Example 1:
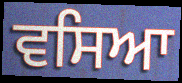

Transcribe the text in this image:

ਵਸਿਆ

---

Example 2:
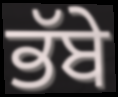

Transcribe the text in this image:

ਭੱਬੇ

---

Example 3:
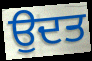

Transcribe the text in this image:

ਉਦਤ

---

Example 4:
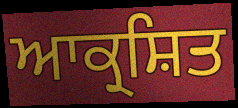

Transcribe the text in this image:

ਆਕ੍ਰਸ਼ਿਤ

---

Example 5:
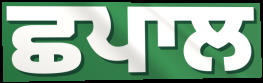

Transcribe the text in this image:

ਛਪਾਲ